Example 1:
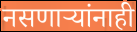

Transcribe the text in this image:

नसणार्‍यांनाही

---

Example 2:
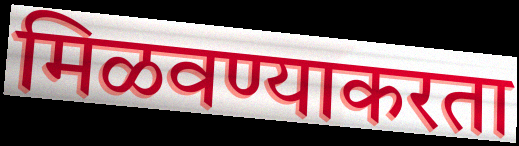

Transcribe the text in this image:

मिळवण्याकरता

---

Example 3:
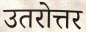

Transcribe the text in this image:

उतरोत्तर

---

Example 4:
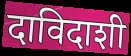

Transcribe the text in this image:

दाविदाशी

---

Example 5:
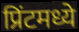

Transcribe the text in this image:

प्रिंटमध्ये